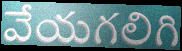
వేయగలిగి